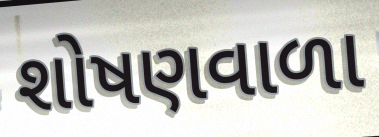
શોષણવાળા